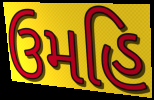
ઉમહિ